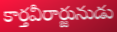
కార్తవీరార్జునుడు